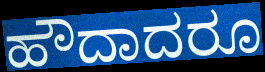
ಹೌದಾದರೂ